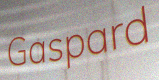
Gaspard